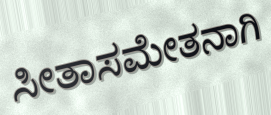
ಸೀತಾಸಮೇತನಾಗಿ